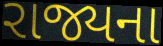
રાજ્યના